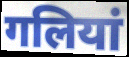
गलियां